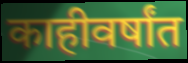
काहीवर्षांत